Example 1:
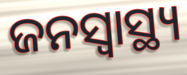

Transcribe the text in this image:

ଜନସ୍ବାସ୍ଥ୍ୟ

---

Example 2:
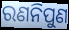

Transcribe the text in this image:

ରଣନିପୁଣ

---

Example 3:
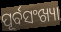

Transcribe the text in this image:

ପୂର୍ବସଂଖ୍ୟା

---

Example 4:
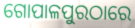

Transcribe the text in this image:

ଗୋପାଳପୁରଠାରେ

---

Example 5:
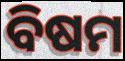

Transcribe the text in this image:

ବିଷମ